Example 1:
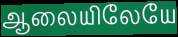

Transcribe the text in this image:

ஆலையிலேயே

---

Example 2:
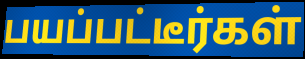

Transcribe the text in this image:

பயப்பட்டீர்கள்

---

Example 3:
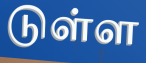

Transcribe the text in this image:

டுள்ள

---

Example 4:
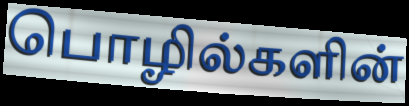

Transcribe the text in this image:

பொழில்களின்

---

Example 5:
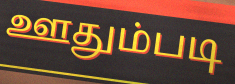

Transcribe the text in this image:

ஊதும்படி